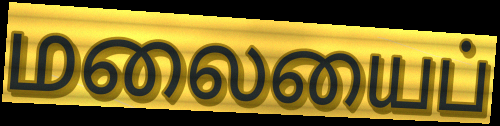
மலையைப்